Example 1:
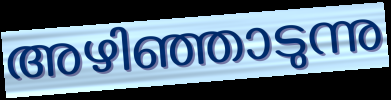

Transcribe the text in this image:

അഴിഞ്ഞാടുന്നു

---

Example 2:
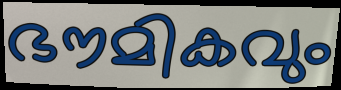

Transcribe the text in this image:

ഭൗമികവും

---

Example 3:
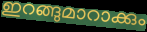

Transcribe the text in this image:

ഇറങ്ങുമാറാക്കും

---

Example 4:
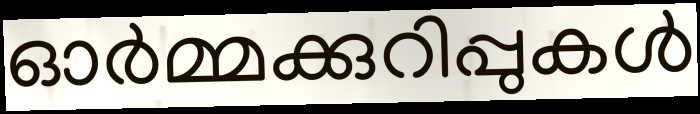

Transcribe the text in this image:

ഓർമ്മക്കുറിപ്പുകൾ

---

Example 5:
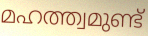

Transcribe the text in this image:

മഹത്ത്വമുണ്ട്